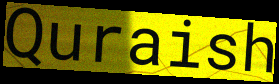
Quraish